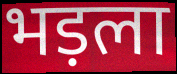
भड़ला